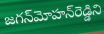
జగన్‌మోహన్‌రెడ్డిని